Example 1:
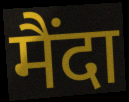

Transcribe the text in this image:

मैंदा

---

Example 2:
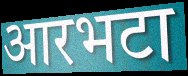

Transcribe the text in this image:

आरभटा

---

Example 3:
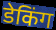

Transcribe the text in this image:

डेकिंग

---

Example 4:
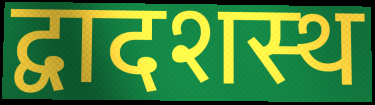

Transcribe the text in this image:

द्वादशस्थ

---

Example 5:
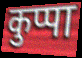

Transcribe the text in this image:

कुप्पा